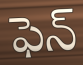
ఫెన్